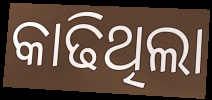
କାଢିଥିଲା